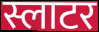
स्लाटर